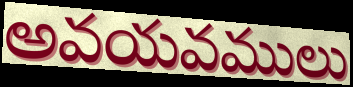
అవయవములు